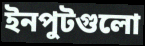
ইনপুটগুলো